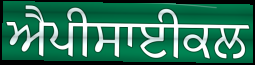
ਐਪੀਸਾਈਕਲ